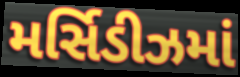
મર્સિડીઝમાં